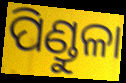
ପିଣ୍ଡୁଳା